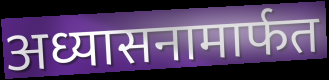
अध्यासनामार्फत